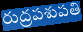
రుద్రపశుపతి